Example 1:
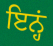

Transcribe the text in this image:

ਇਨ੍ਹਂ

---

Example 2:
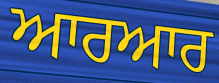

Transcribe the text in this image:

ਆਰਆਰ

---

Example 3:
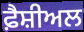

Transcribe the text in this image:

ਫ਼ੈਸ਼ੀਅਲ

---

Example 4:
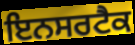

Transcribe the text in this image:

ਇਨਸਰਟੈਕ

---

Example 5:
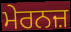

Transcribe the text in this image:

ਮੇਰਨਜ਼